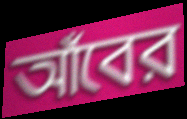
আঁবের